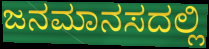
ಜನಮಾನಸದಲ್ಲಿ